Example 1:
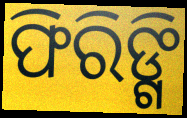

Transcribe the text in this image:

ଫିରିଙ୍ଗି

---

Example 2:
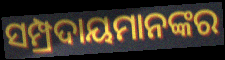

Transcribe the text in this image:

ସମ୍ପ୍ରଦାୟମାନଙ୍କର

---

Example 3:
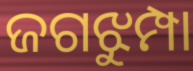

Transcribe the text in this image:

ଜଗଝୁମ୍ପା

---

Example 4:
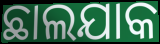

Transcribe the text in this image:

ଛାଲଯାକ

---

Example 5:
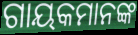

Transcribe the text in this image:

ଗାୟକମାନଙ୍କ